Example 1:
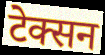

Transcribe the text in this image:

टेक्सन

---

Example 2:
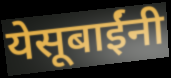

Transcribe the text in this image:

येसूबाईंनी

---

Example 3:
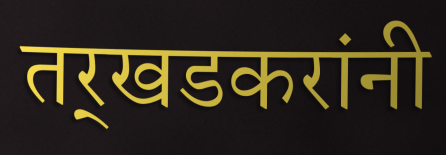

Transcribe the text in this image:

तर्खडकरांनी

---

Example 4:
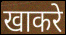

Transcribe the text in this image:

खाकरे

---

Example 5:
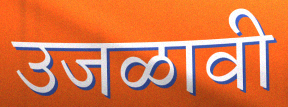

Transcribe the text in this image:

उजळावी